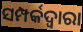
ସମ୍ପର୍କଦ୍ୱାରା